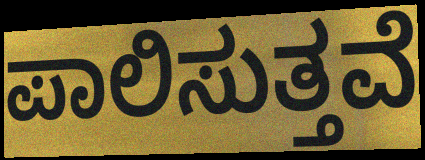
ಪಾಲಿಸುತ್ತವೆ